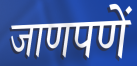
जाणपणें